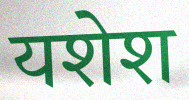
यशेश